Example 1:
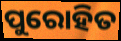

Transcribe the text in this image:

ପୁରୋହିତ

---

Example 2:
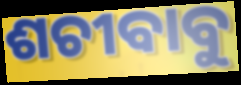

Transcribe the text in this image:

ଶଚୀବାବୁ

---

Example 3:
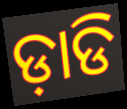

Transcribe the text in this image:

ଡ଼ାଡି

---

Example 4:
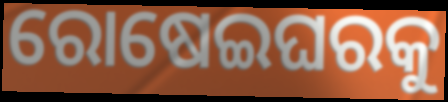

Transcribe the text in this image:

ରୋଷେଇଘରକୁ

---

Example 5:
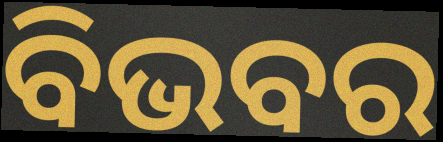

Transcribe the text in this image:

ବିଭବର